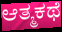
ಆತ್ಮಕಥೆ